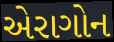
એરાગોન